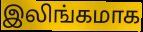
இலிங்கமாக